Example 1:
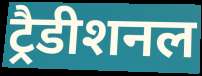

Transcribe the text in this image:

ट्रैडीशनल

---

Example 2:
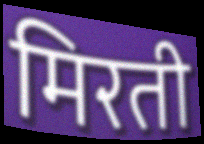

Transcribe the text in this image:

मिरती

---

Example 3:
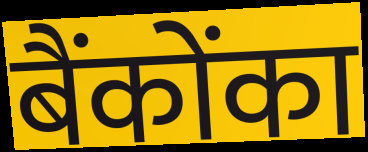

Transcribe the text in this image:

बैंकोंका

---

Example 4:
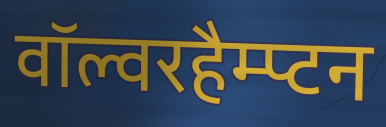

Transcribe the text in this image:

वॉल्वरहैम्प्टन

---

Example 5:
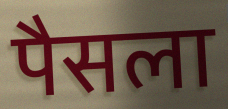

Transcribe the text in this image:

पैसला